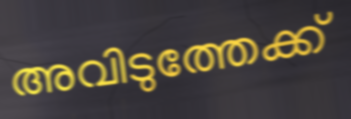
അവിടുത്തേക്ക്